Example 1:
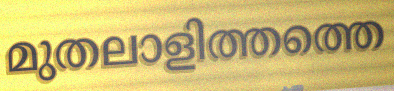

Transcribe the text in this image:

മുതലാളിത്തത്തെ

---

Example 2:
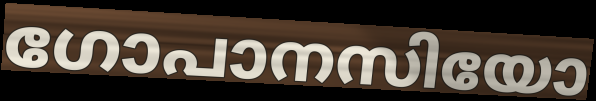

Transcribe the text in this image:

ഗോപാനസിയോ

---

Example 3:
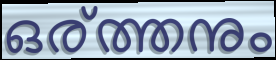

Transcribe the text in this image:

ഒര്ത്തനും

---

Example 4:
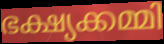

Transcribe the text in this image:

ഭക്ഷ്യക്കമ്മി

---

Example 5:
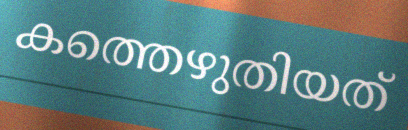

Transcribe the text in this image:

കത്തെഴുതിയത്